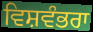
ਵਿਸ਼ਵੰਭਰਾ